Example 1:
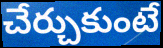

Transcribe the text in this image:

చేర్చుకుంటే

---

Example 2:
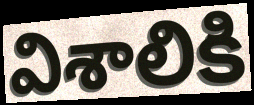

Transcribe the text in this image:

విశాలికి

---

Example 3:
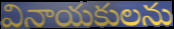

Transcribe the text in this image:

వినాయకులను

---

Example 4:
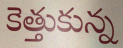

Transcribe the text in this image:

కెత్తుకున్న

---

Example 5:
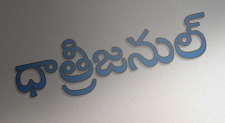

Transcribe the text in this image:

ధాత్రీజనుల్